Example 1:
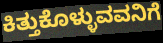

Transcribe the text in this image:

ಕಿತ್ತುಕೊಳ್ಳುವವನಿಗೆ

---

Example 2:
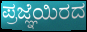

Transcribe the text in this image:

ಪ್ರಜ್ಞೆಯಿರದ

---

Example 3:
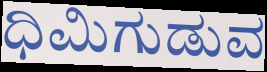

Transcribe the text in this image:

ಧಿಮಿಗುಡುವ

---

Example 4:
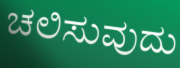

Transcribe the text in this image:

ಚಲಿಸುವುದು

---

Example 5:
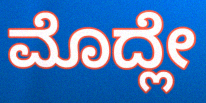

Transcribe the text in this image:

ಮೊದ್ಲೇ